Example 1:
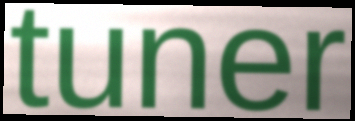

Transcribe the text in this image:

tuner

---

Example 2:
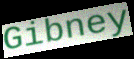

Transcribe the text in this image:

Gibney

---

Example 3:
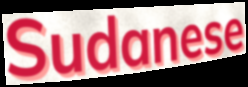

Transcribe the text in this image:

Sudanese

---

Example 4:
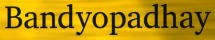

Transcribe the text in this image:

Bandyopadhay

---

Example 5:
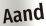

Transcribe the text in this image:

Aand